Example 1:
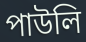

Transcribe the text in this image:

পাউলি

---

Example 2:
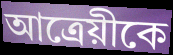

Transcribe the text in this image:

আত্রেয়ীকে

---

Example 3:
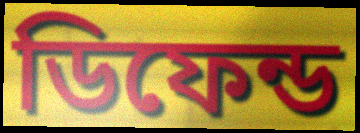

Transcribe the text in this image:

ডিফেন্ড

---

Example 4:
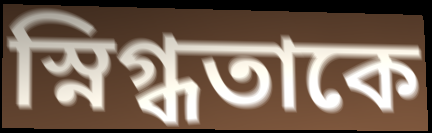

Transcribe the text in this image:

স্নিগ্ধতাকে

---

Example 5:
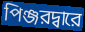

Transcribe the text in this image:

পিঞ্জরদ্বারে